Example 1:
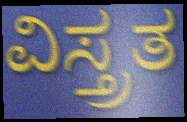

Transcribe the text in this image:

ವಿಸ್ತ್ರತ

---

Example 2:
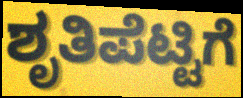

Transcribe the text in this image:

ಶೃತಿಪೆಟ್ಟಿಗೆ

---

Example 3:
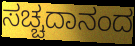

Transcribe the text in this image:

ಸಚ್ಚದಾನಂದ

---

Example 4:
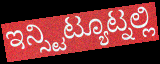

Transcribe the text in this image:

ಇನ್ಸ್ಟಿಟ್ಯೂಟ್ನಲ್ಲಿ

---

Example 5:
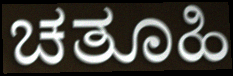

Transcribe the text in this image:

ಚತೂಹಿ